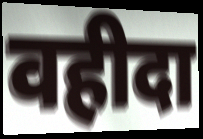
वहीदा